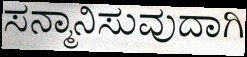
ಸನ್ಮಾನಿಸುವುದಾಗಿ